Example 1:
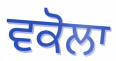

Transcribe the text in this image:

ਵਕੋਲਾ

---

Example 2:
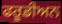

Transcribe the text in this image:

ਫਰੂਡੀਅਨ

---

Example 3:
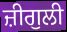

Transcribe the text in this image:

ਜ਼ੀਗੁਲੀ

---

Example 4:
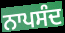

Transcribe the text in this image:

ਨਾਪਸੰਦ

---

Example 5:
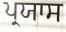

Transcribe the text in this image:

ਪ੍ਰਯਾਸ